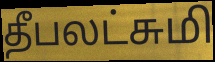
தீபலட்சுமி